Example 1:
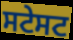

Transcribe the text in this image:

ਸਟੇਸਟ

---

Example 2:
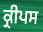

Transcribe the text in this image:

ਕ੍ਰੀਪਸ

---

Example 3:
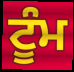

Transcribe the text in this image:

ਟੂੰਮ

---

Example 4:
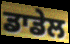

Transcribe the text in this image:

ਡਾਡੇਲ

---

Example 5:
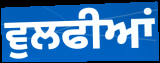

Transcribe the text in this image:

ਵੁਲਫੀਆਂ